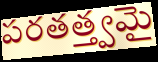
పరతత్త్వమై